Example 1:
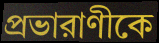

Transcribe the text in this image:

প্রভারাণীকে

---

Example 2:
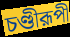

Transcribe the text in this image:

চণ্ডীরূপী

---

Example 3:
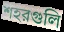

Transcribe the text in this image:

শহরগুলি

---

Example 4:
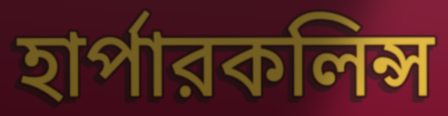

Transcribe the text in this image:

হার্পারকলিন্স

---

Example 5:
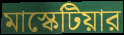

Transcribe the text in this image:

মাস্কেটিয়ার